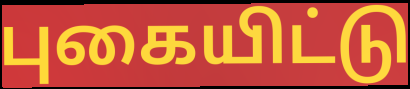
புகையிட்டு